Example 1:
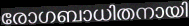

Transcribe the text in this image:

രോഗബാധിതനായി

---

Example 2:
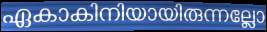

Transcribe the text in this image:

ഏകാകിനിയായിരുന്നല്ലോ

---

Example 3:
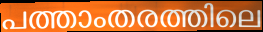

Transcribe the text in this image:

പത്താംതരത്തിലെ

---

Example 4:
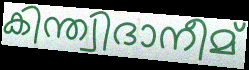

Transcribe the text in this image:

കിന്ത്വിദാനീമ്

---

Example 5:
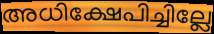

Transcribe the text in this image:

അധിക്ഷേപിച്ചില്ലേ